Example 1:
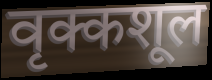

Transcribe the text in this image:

वृक्कशूल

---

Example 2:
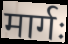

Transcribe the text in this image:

मार्गः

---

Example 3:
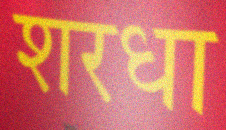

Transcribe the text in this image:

शरधा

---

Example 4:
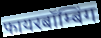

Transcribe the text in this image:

फायरबॉम्बिंग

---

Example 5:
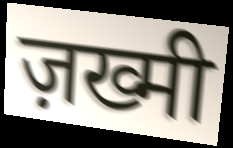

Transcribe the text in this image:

ज़ख्मी